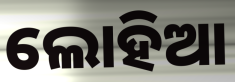
ଲୋହିଆ